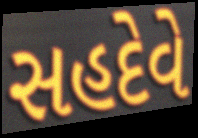
સહદેવે